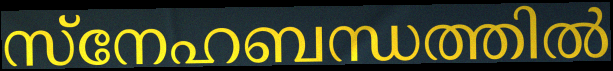
സ്നേഹബന്ധത്തിൽ